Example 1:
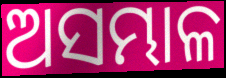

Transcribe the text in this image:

ଅସମ୍ଭାଳ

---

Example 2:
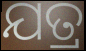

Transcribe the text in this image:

ଯତ୍ର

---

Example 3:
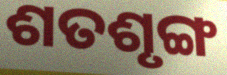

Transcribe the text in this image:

ଶତଶୃଙ୍ଗ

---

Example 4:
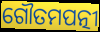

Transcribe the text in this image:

ଗୌତମପତ୍ନୀ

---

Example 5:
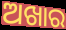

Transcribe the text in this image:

ଅଖାର